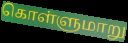
கொள்ளுமாறு